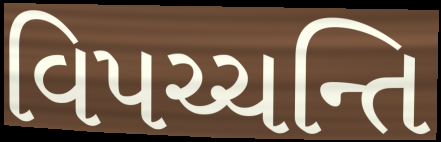
વિપચ્ચન્તિ